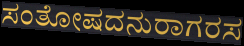
ಸಂತೋಷದನುರಾಗರಸ